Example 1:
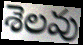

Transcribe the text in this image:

శెలవు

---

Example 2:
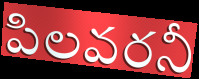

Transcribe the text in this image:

పిలవరనీ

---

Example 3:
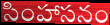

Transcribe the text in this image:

సింహాసనం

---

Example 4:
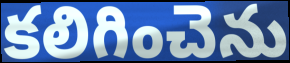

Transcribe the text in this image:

కలిగించెను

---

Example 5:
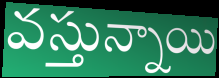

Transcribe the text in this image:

వస్తున్నాయి